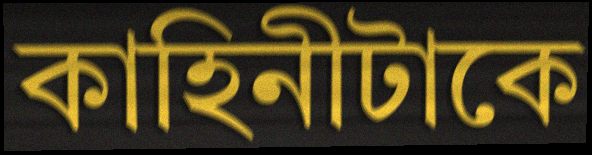
কাহিনীটাকে